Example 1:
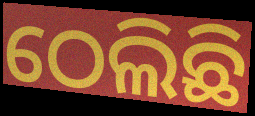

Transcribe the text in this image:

ଠେଲିଛି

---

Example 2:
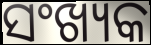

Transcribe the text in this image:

ସଂଖ୍ୟକ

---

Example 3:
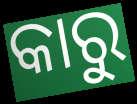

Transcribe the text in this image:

କାରୁ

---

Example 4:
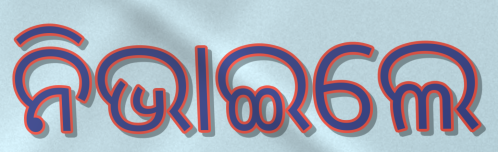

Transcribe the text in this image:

ନିଭାଇଲେ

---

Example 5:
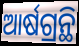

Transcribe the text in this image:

ଆର୍ଷଗ୍ରନ୍ଥି